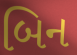
બિન